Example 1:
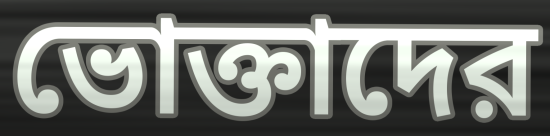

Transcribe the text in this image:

ভোক্তাদের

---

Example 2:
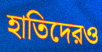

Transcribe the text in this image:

হাতিদেরও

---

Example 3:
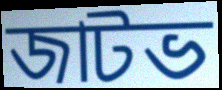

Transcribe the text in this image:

জাটভ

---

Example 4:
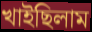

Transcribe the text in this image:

খাইছিলাম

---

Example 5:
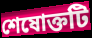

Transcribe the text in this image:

শেষোক্তটি